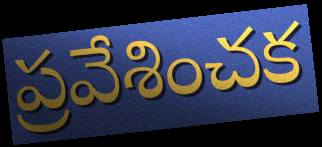
ప్రవేశించక